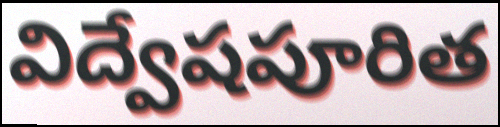
విద్వేషపూరిత